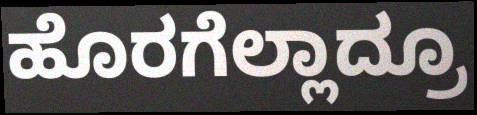
ಹೊರಗೆಲ್ಲಾದ್ರೂ